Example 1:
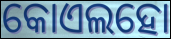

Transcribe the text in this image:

କୋଏଲହୋ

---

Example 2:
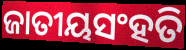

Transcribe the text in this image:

ଜାତୀୟସଂହତି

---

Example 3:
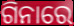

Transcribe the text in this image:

ଗିନାରେ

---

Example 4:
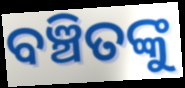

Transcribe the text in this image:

ବଞ୍ଚିତଙ୍କୁ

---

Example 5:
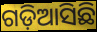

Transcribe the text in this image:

ଗଡ଼ିଆସିଛି